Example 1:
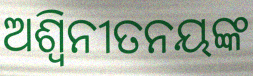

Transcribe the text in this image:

ଅଶ୍ୱିନୀତନୟଙ୍କ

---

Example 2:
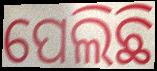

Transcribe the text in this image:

ପେଲିଛି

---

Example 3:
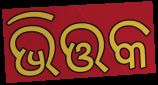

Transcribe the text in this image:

ଭିତ୍ତକ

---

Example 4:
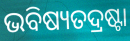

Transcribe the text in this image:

ଭବିଷ୍ୟତଦ୍ରଷ୍ଟା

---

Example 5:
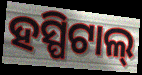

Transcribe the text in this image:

ହସ୍ପିଟାଲ୍